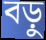
বড়ু